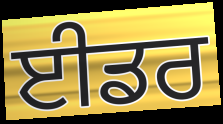
ਈਡਰ